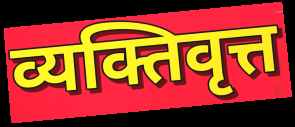
व्यक्तिवृत्त